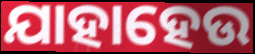
ଯାହାହେଉ